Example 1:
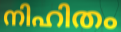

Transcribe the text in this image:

നിഹിതം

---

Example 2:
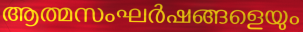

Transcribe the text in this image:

ആത്മസംഘർഷങ്ങളെയും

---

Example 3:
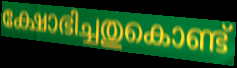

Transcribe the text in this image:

ക്ഷോഭിച്ചതുകൊണ്ട്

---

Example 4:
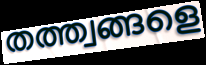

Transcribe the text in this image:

തത്ത്വങ്ങളെ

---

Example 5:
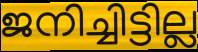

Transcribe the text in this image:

ജനിച്ചിട്ടില്ല